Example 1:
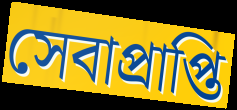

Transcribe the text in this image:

সেবাপ্রাপ্তি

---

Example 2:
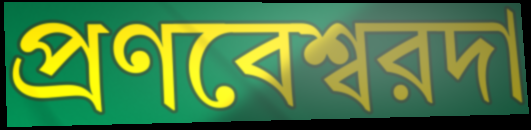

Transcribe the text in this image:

প্রণবেশ্বরদা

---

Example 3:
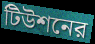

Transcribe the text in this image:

টিউশনের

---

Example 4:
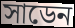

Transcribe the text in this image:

সাডেন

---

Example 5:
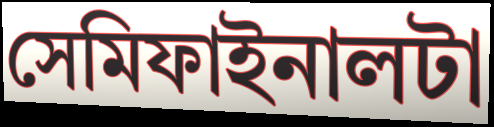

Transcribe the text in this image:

সেমিফাইনালটা